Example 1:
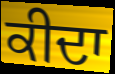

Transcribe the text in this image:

ਕੀਦਾ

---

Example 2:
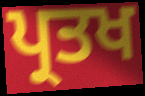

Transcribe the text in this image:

ਪ੍ਰਤਖ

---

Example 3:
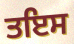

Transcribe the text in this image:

ਤਇਸ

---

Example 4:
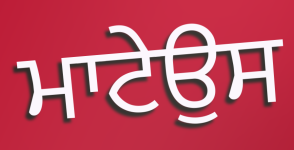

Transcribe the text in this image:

ਮਾਟੇਉਸ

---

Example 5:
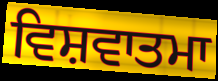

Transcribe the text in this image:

ਵਿਸ਼ਵਾਤਮਾ